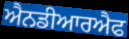
ਐਨਡੀਆਰਐਫ